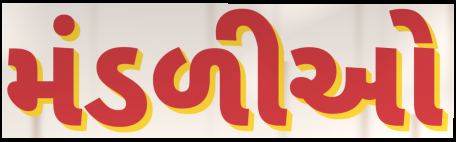
મંડળીઓ